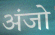
अंजो